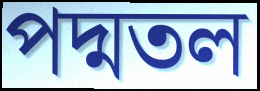
পদ্মতল